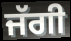
ਜੱਗੀ